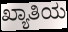
ಖ್ಯಾತಿಯ